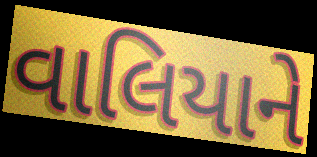
વાલિયાને